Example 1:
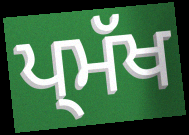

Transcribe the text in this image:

ਪ੍ਮੱਖ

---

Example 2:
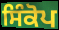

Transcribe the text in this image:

ਸਿੰਕੋਪ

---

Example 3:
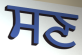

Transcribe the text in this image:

ਸਣ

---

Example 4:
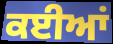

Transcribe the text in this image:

ਕਈਆਂ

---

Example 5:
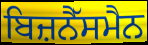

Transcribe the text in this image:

ਬਿਜ਼ਨੈੱਸਮੈਨ